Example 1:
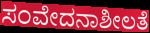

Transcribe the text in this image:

ಸಂವೇದನಾಶೀಲತೆ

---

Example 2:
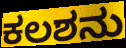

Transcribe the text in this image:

ಕಲಶನು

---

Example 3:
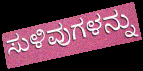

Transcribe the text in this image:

ಸುಳಿವುಗಳನ್ನು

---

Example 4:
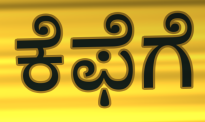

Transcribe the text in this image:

ಕೆಫೆಗೆ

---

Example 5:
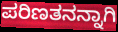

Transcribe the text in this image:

ಪರಿಣತನನ್ನಾಗಿ